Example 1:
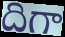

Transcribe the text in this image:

దిగా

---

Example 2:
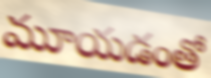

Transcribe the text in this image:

మూయడంతో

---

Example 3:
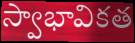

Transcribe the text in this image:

స్వాభావికత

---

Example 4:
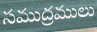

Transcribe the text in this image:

సముద్రములు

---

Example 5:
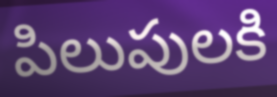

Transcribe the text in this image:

పిలుపులకి